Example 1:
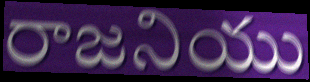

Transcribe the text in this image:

రాజనియు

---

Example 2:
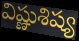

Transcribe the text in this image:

విష్ణుశిష్య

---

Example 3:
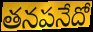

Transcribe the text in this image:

తనపనేదో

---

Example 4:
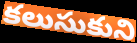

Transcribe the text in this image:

కలుసుకుని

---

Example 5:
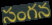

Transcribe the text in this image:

సంగన